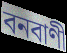
বনবাণী